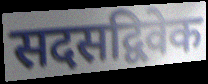
सदसद्विवेक